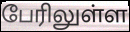
பேரிலுள்ள